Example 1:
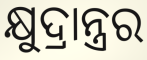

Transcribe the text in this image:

କ୍ଷୁଦ୍ରାନ୍ତ୍ରର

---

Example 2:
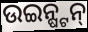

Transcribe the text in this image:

ଉଇନ୍ଷ୍ଟନ୍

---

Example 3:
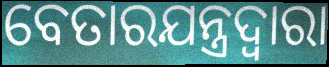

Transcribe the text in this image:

ବେତାରଯନ୍ତ୍ରଦ୍ୱାରା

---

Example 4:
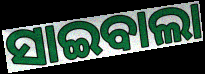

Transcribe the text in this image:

ସାଇବାଲା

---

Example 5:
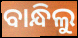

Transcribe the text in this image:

ବାନ୍ଧିଲୁ